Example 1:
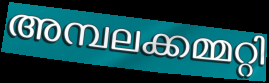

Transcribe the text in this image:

അമ്പലക്കമ്മറ്റി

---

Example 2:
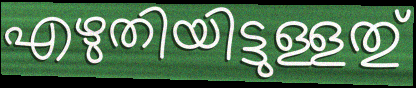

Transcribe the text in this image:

എഴുതിയിട്ടുള്ളതു്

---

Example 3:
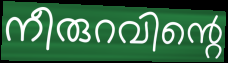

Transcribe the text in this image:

നീരുറവിന്റെ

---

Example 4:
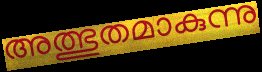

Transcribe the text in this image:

അത്ഭുതമാകുന്നു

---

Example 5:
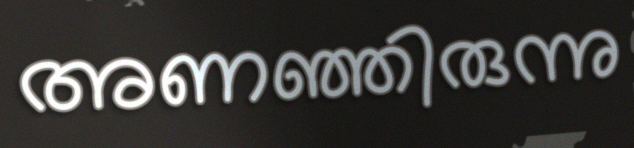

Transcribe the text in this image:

അണഞ്ഞിരുന്നു